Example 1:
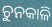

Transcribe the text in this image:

ଚୁନକାଳି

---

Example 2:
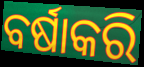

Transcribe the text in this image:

ବର୍ଷାକରି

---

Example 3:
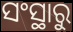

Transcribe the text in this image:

ସଂସ୍ଥାରୁ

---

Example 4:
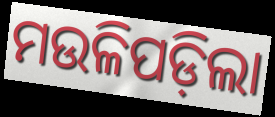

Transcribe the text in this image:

ମଉଳିପଡ଼ିଲା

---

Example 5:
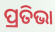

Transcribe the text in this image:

ପ୍ରତିଭା